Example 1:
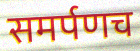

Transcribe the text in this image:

समर्पणच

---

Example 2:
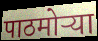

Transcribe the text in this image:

पाठमोऱ्या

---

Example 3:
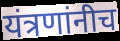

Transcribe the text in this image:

यंत्रणांनीच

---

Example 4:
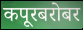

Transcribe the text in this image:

कपूरबरोबर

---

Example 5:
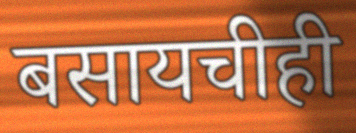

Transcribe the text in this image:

बसायचीही